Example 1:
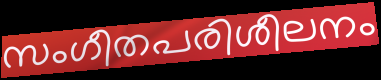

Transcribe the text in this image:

സംഗീതപരിശീലനം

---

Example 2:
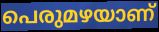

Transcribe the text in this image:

പെരുമഴയാണ്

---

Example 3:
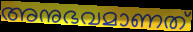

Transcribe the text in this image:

അനുഭവമാണത്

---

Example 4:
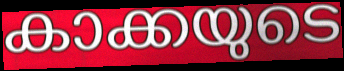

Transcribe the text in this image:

കാക്കയുടെ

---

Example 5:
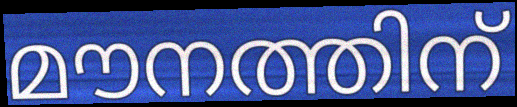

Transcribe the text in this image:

മൗനത്തിന്